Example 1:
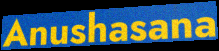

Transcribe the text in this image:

Anushasana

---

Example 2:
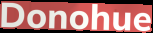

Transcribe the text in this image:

Donohue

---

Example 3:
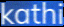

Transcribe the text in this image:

kathi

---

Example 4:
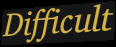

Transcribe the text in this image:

Difficult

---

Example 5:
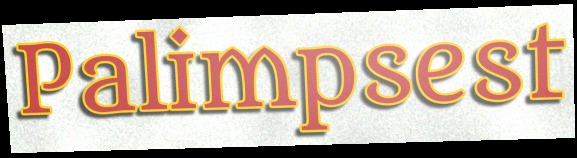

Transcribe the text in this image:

Palimpsest